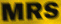
MRS